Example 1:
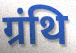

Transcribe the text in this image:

ग्रंथि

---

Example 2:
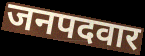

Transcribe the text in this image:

जनपदवार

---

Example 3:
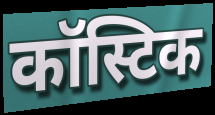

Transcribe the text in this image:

कॉस्टिक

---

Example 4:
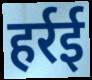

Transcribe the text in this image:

हर्रई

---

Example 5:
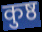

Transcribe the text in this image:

कुष्ठ